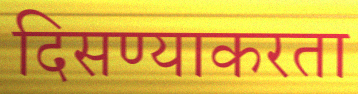
दिसण्याकरता